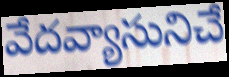
వేదవ్యాసునిచే